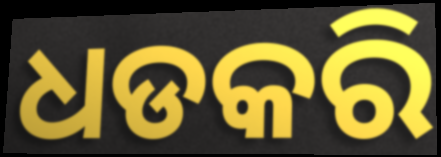
ଧଡକରି